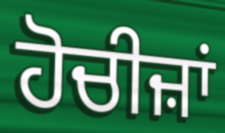
ਹੋਚੀਜ਼ਾਂ